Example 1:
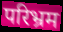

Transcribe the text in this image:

परिभ्रम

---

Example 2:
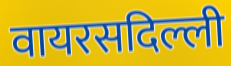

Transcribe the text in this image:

वायरसदिल्ली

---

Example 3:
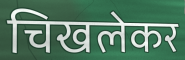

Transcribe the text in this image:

चिखलेकर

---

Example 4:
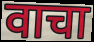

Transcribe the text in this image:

वाचा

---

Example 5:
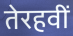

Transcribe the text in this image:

तेरहवीं